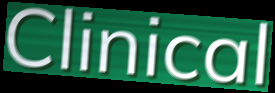
Clinical